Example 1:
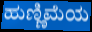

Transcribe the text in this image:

ಹುಣ್ಣಿಮೆಯ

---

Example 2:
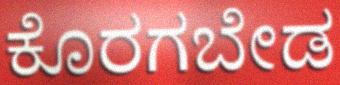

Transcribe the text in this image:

ಕೊರಗಬೇಡ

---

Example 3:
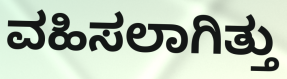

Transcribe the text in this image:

ವಹಿಸಲಾಗಿತ್ತು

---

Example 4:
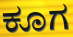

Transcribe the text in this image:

ಕೂಗ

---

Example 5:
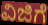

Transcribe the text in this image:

ವಿಜಿಗೆ